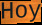
Hoy